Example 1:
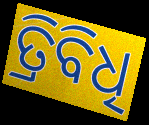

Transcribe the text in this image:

ତ୍ରିବିଧି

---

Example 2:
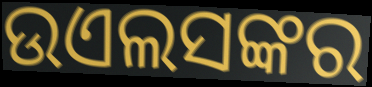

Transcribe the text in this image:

ଉଏଲସଙ୍କର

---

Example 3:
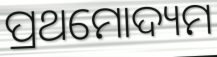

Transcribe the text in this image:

ପ୍ରଥମୋଦ୍ୟମ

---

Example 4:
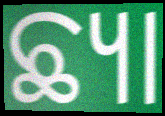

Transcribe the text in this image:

ଛ୍ୟା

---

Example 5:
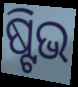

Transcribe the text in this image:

ଷ୍ଟିଭ